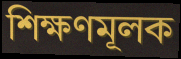
শিক্ষণমূলক